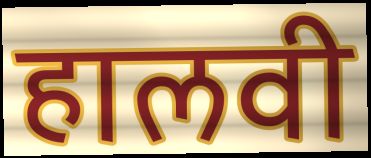
हालवी